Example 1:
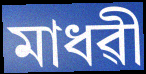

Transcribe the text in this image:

মাধৱী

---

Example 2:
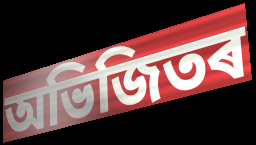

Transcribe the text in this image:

অভিজিতৰ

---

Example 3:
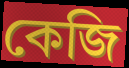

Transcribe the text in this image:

কেজি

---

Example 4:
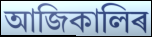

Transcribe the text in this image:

আজিকালিৰ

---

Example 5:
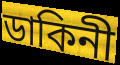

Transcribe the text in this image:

ডাকিনী